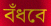
বঁধবে